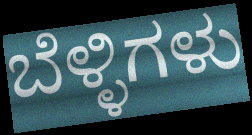
ಬೆಳ್ಳಿಗಳು